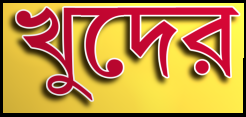
খুদের